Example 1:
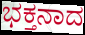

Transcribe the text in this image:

ಭಕ್ತನಾದ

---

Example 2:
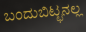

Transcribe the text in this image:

ಬಂದುಬಿಟ್ಟನಲ್ಲ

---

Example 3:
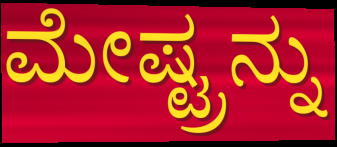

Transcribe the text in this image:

ಮೇಷ್ಟ್ರನ್ನು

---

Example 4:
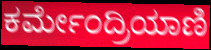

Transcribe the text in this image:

ಕರ್ಮೇಂದ್ರಿಯಾಣಿ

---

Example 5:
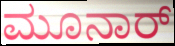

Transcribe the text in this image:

ಮೂನಾರ್